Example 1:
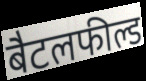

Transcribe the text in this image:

बैटलफील्ड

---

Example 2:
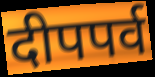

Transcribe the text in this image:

दीपपर्व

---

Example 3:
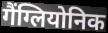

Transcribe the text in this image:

गैंग्लियोनिक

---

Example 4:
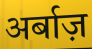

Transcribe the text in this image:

अर्बाज़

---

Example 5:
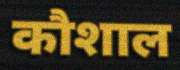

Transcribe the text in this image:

कौशाल